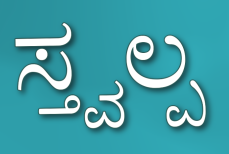
ಸ್ತ್ವಲ್ಪ